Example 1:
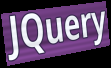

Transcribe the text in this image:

JQuery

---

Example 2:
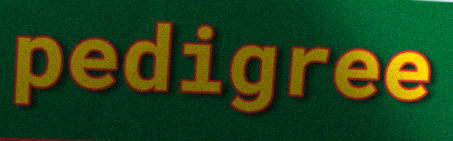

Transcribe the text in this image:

pedigree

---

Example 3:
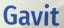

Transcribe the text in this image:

Gavit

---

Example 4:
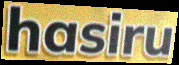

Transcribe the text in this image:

hasiru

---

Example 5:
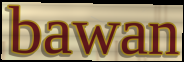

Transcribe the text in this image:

bawan